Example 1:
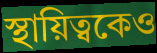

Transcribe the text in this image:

স্থায়িত্বকেও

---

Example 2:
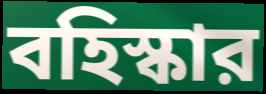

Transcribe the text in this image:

বহিস্কার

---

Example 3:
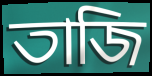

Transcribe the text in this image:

তাজি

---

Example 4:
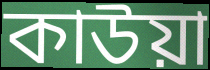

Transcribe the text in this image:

কাউয়া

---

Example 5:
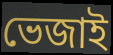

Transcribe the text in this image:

ভেজাই